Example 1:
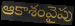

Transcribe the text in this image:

ఆకాశంవైపు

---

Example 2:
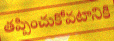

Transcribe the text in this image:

తప్పించుకోవటానికి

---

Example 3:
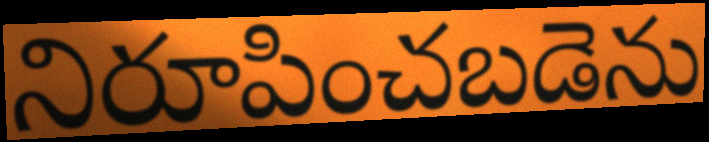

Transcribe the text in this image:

నిరూపించబడెను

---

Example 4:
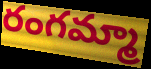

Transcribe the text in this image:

రంగమ్మా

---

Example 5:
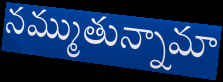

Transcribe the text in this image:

నమ్ముతున్నామా